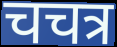
चचत्र